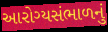
આરોગ્યસંભાળનું